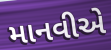
માનવીએ